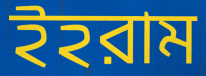
ইহরাম